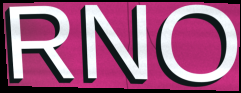
RNO